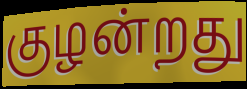
குழன்றது